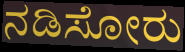
ನಡಿಸೋರು